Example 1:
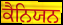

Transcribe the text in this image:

ਕੈਨਿਯਨ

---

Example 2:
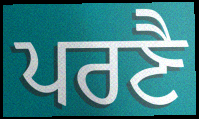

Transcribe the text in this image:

ਪਰਣੈ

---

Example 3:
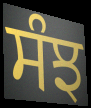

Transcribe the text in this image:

ਸੰਝ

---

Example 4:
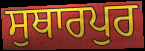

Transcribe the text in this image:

ਸੁਥਾਰਪੁਰ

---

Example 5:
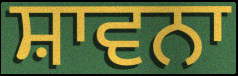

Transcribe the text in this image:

ਸ਼ਾਵਨਾ